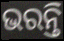
ଭରନ୍ତି